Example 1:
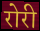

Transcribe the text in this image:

रोरी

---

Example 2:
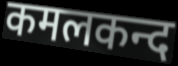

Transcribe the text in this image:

कमलकन्द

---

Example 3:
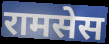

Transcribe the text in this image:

रामसेस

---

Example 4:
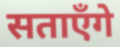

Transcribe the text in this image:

सताएँगे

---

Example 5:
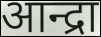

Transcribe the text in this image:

आन्द्रा